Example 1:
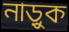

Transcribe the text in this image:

নাড়ুক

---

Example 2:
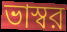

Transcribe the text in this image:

ভাস্বর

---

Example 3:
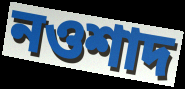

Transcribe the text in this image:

নওশাদ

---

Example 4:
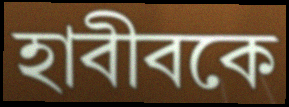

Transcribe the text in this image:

হাবীবকে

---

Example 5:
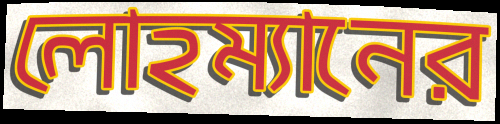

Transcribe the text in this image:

লোহম্যানের